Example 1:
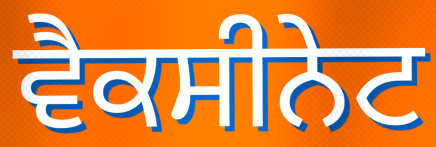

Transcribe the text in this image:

ਵੈਕਸੀਨੇਟ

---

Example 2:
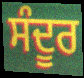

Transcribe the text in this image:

ਸੰਦੂਰ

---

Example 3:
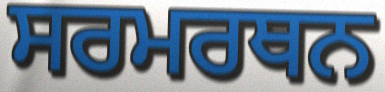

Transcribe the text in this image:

ਸਰਮਰਥਨ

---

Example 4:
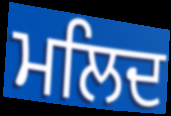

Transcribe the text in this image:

ਮਲਿਦ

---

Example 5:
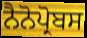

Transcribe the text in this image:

ਨੈਨੋਪ੍ਰੋਬਸ